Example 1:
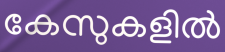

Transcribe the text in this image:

കേസുകളിൽ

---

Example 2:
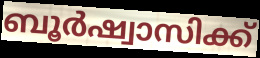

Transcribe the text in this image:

ബൂർഷ്വാസിക്ക്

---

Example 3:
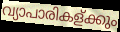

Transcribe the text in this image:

വ്യാപാരികള്ക്കും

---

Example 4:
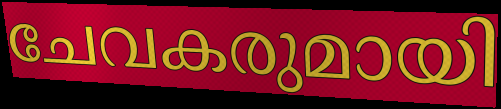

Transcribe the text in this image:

ചേവകരുമായി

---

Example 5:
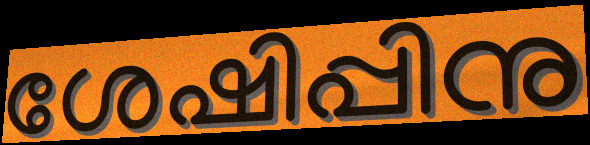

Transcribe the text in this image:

ശേഷിപ്പിനു